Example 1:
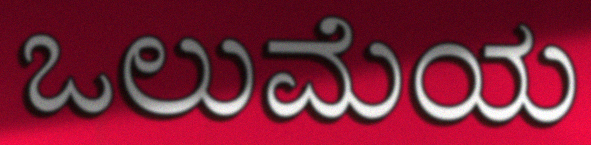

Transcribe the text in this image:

ಒಲುಮೆಯ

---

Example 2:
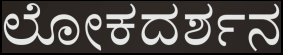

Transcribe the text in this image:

ಲೋಕದರ್ಶನ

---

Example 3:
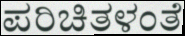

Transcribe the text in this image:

ಪರಿಚಿತಳಂತೆ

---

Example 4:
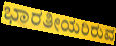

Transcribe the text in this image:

ಭಾರತೀಯರಿರುವ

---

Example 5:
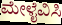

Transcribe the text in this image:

ಮೇಳೈವಿಸಿ